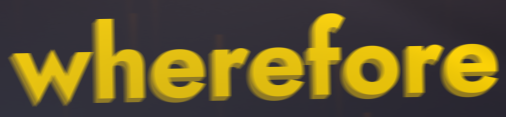
wherefore